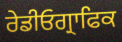
ਰੇਡੀਓਗ੍ਰਾਫਿਕ